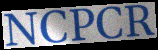
NCPCR